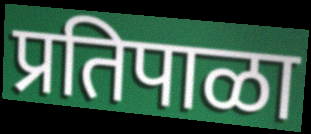
प्रतिपाळा